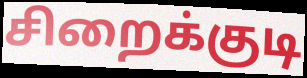
சிறைக்குடி